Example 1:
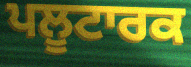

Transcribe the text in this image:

ਪਲੂਟਾਰਕ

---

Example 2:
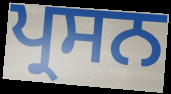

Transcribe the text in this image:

ਪ੍ਰਸਨ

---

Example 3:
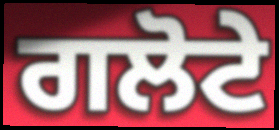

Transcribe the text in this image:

ਗਲੋਟੇ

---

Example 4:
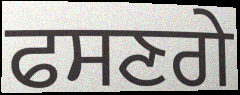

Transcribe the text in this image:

ਫਸਣਗੇ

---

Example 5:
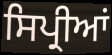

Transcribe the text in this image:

ਸਿਪ੍ਰੀਆਂ